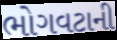
ભોગવટાની